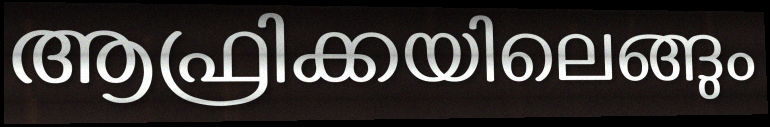
ആഫ്രിക്കയിലെങ്ങും